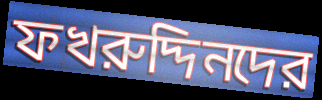
ফখরুদ্দিনদের